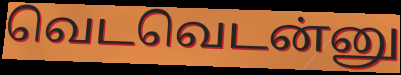
வெடவெடன்னு